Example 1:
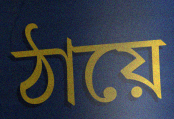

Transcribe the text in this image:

ঠায়ে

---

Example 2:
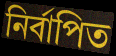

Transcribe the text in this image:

নিৰ্বাপিত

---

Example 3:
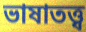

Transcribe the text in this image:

ভাষাতত্ত্ব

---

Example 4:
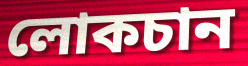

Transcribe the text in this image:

লোকচান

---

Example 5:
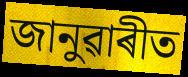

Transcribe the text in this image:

জানুৱাৰীত